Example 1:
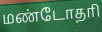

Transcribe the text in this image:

மண்டோதரி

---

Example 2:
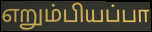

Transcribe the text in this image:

எறும்பியப்பா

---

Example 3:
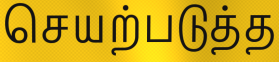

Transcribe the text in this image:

செயற்படுத்த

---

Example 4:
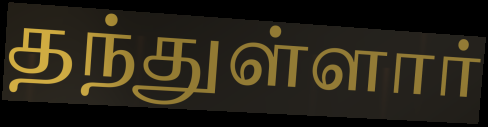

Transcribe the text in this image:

தந்துள்ளார்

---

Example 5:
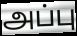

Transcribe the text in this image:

அப்பு